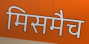
मिसमैच